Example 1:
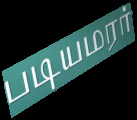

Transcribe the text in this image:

படியமரர்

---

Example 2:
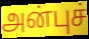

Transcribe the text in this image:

அன்புச்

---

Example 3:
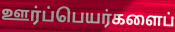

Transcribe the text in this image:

ஊர்ப்பெயர்களைப்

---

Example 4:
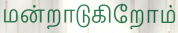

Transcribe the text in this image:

மன்றாடுகிறோம்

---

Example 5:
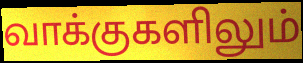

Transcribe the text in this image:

வாக்குகளிலும்